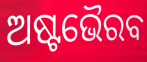
ଅଷ୍ଟଭୈରବ